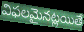
విఫలమైనట్లయితే